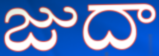
జుదా